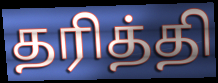
தரித்தி